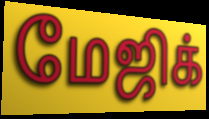
மேஜிக்